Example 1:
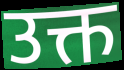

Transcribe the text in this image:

उक्त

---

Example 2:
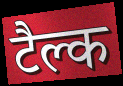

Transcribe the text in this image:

टैल्क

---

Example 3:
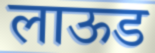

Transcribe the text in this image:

लाऊड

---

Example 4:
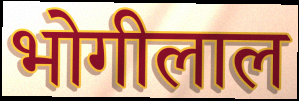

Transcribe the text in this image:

भोगीलाल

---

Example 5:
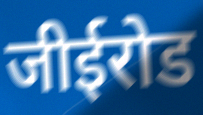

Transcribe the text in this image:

जीईरोड